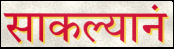
साकल्यानं